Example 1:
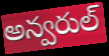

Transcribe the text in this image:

అన్వరుల్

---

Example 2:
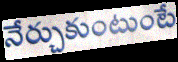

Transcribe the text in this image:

నేర్చుకుంటుంటే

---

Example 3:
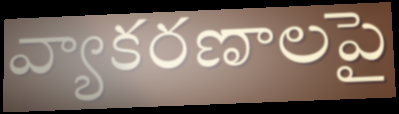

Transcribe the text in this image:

వ్యాకరణాలపై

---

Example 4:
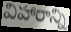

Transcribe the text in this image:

విహారాన్ని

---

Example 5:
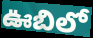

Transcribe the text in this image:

ఊబిలో